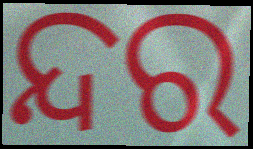
ନ୍ଦର